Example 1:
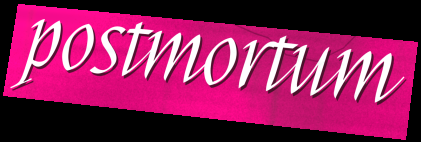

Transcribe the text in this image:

postmortum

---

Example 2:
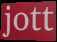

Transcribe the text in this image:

jott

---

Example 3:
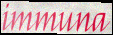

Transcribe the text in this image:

immuna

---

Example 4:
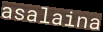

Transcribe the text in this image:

asalaina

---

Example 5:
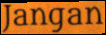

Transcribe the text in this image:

Jangan